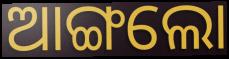
ଆଙ୍ଗଲୋ